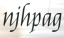
njhpag